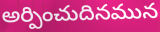
అర్పించుదినమున